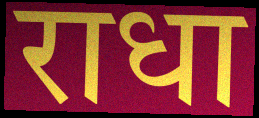
राधा